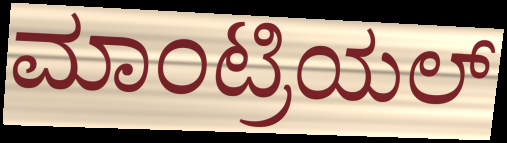
ಮಾಂಟ್ರಿಯಲ್